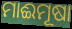
ମାଈମୂଷା